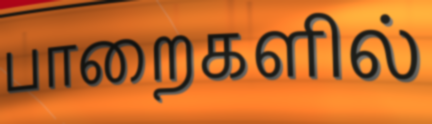
பாறைகளில்